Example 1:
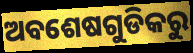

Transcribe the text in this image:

ଅବଶେଷଗୁଡିକରୁ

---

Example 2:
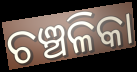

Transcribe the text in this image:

ଚଞ୍ଚଳିକା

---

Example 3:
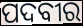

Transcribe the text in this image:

ପଦବୀର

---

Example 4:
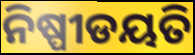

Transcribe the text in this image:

ନିଷ୍ପୀଡୟତି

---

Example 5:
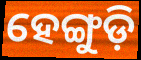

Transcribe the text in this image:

ହେଙ୍ଗୁଡ଼ି